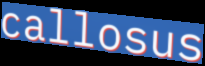
callosus